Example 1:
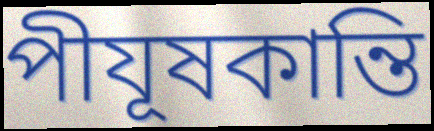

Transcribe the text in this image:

পীযূষকান্তি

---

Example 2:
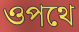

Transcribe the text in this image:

ওপথে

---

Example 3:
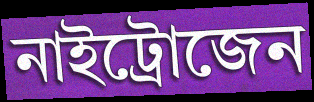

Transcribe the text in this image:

নাইট্রোজেন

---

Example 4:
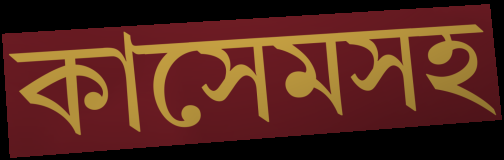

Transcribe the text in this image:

কাসেমসহ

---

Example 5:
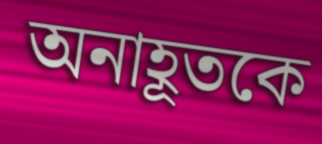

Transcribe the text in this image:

অনাহূতকে